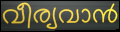
വീര്യവാൻ